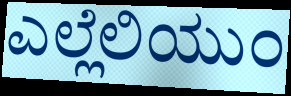
ಎಲ್ಲೆಲಿಯುಂ